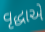
વૃદ્ધાએ